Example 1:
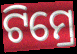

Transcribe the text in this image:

ଟିମ୍ରେ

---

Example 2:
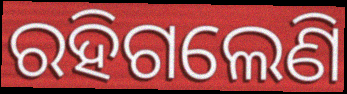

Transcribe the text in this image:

ରହିଗଲେଣି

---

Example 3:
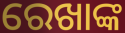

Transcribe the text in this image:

ରେଖାଙ୍କ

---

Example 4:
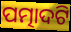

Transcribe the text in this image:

ପତ୍ମାଦଟି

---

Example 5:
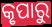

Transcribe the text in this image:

କୃପାରୁ